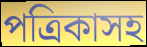
পত্রিকাসহ